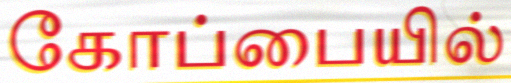
கோப்பையில்